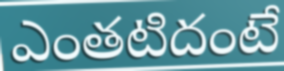
ఎంతటిదంటే